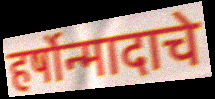
हर्षोन्मादाचे